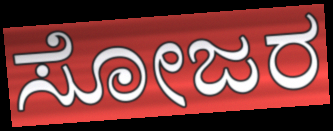
ಸೋಜರ